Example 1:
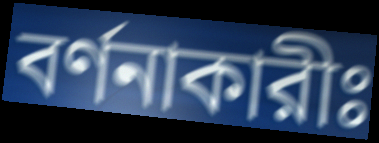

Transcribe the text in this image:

বর্ণনাকারীঃ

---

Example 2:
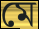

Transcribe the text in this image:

মে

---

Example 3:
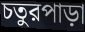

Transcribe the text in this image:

চতুরপাড়া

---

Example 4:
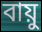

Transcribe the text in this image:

বায়ু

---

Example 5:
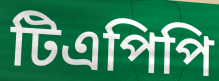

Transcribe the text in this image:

টিএপিপি